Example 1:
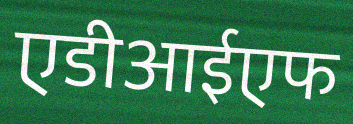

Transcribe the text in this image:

एडीआईएफ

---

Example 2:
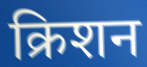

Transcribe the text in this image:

क्रिशन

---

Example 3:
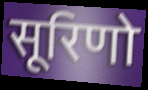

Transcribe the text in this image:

सूरिणो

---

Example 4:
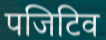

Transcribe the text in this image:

पजिटिव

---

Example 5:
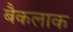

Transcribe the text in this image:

बैकलाक